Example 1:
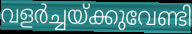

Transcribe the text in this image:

വളർച്ചയ്ക്കുവേണ്ടി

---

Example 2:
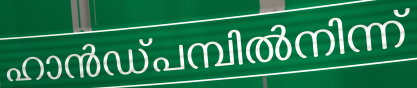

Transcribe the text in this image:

ഹാൻഡ്പമ്പിൽനിന്ന്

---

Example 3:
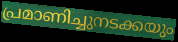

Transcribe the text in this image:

പ്രമാണിച്ചുനടക്കയും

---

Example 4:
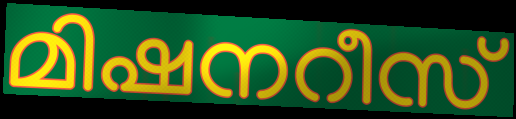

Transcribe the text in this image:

മിഷനറീസ്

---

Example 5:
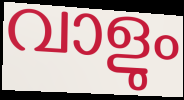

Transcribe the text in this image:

വാളും